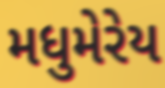
મધુમેરેય